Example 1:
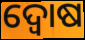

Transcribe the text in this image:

ଦ୍ୱୋଷ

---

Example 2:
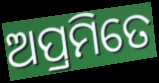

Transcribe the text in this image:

ଅପ୍ରମିତେ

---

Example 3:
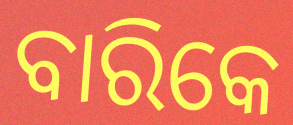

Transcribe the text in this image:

ବାରିକେ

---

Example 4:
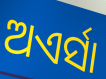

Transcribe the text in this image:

ଅଏର୍ସା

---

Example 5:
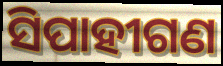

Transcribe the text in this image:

ସିପାହୀଗଣ